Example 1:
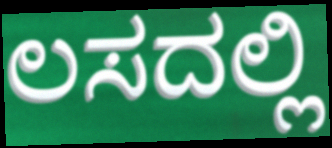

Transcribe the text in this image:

ಲಸದಲ್ಲಿ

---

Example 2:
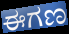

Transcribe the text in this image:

ಈಗಣ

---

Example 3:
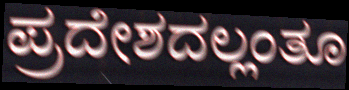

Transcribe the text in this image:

ಪ್ರದೇಶದಲ್ಲಂತೂ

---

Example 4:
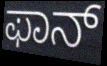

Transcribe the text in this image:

ಫಾನ್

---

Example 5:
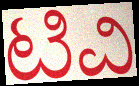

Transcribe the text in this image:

ಟಿವಿ